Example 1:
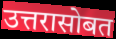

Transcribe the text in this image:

उत्तरासोबत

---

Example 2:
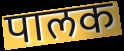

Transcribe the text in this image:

पालक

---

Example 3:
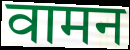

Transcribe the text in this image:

वामन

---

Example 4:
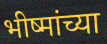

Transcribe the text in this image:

भीष्मांच्या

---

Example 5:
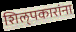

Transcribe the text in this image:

शिल्पकारांना